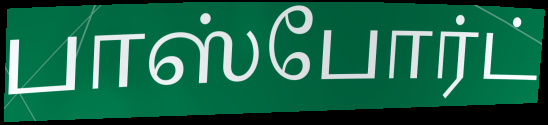
பாஸ்போர்ட்